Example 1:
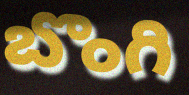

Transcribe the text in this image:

బొంగి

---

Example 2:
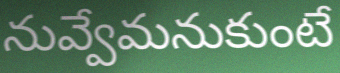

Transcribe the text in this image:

నువ్వేమనుకుంటే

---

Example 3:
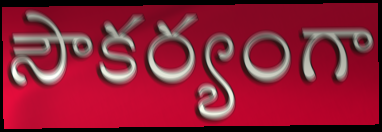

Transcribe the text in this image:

సౌకర్యంగా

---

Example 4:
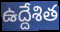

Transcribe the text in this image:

ఉద్దేశిత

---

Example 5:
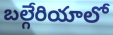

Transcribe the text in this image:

బల్గేరియాలో